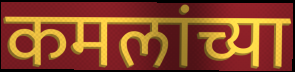
कमलांच्या